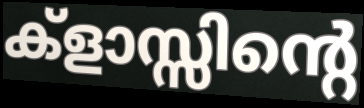
ക്ളാസ്സിന്റെ